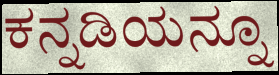
ಕನ್ನಡಿಯನ್ನೂ